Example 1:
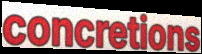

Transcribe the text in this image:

concretions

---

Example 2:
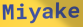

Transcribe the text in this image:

Miyake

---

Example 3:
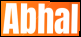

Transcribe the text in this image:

Abhal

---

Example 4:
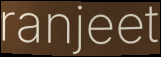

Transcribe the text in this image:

ranjeet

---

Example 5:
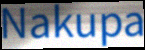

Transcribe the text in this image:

Nakupa